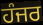
ਹੰਜਰ